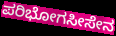
ಪರಿಭೋಗಸೀಸೇನ